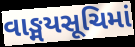
વાઙ્મયસૂચિમાં